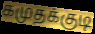
கமுதக்குடி